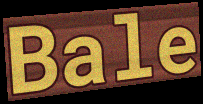
Bale